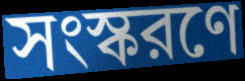
সংস্করণে